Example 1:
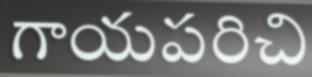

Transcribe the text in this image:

గాయపరిచి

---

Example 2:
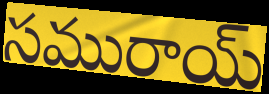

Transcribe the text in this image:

సమురాయ్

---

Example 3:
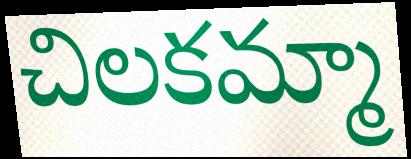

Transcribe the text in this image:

చిలకమ్మా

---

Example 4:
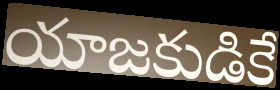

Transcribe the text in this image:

యాజకుడికే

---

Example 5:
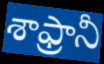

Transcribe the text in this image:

శాఫ్రానీ